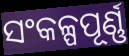
ସଂକଳ୍ପପୂର୍ଣ୍ଣ